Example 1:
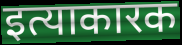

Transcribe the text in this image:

इत्याकारक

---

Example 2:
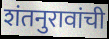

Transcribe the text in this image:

शंतनुरावांची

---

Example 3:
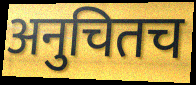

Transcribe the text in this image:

अनुचितच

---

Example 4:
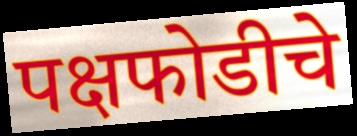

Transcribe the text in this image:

पक्षफोडीचे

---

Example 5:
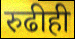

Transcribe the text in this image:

रुढीही